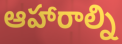
ఆహారాల్ని